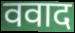
ववाद